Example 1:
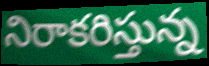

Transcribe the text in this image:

నిరాకరిస్తున్న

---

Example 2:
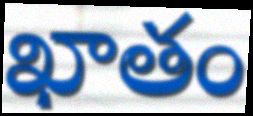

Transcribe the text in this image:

ఖాతం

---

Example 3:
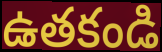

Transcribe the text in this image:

ఉతకండి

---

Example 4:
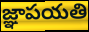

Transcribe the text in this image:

జ్ఞాపయతి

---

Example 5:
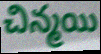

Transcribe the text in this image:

చిన్మయి